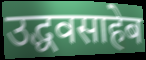
उद्धवसाहेब